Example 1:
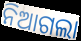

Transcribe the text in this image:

ନିଆଗଲା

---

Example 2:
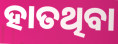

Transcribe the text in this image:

ହାତଥିବା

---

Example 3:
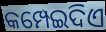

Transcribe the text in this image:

କମ୍ପେଇଦିଏ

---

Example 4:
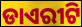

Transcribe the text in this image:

ଡାଏରୀଟି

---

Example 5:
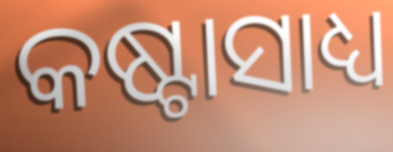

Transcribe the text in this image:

କଷ୍ଟାସାଧ୍ୟ